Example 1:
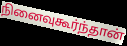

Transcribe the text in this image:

நினைவுகூர்ந்தான்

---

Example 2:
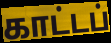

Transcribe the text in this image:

காட்டப்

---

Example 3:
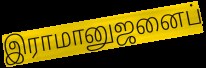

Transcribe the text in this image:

இராமானுஜனைப்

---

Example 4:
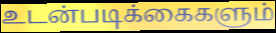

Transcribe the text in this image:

உடன்படிக்கைகளும்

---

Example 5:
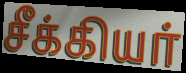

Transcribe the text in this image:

சீக்கியர்